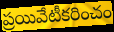
ప్రయివేటీకరించం